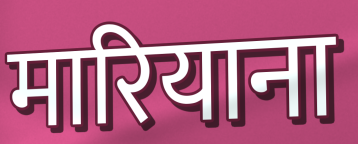
मारियाना